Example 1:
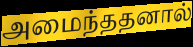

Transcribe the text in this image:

அமைந்ததனால்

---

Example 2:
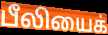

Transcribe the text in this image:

பீலியைக்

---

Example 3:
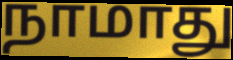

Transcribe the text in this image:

நாமாது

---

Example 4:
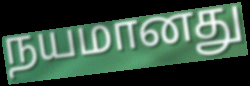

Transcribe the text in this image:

நயமானது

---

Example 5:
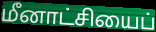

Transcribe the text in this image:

மீனாட்சியைப்